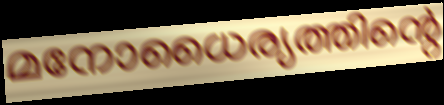
മനോധൈര്യത്തിന്റെ